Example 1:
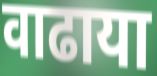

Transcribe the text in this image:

वाढाया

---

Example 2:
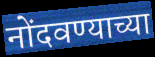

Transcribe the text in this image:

नोंदवण्याच्या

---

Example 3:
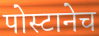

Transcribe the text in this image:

पोस्टानेच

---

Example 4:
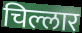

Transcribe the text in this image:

चिल्लार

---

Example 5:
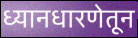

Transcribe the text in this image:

ध्यानधारणेतून